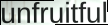
unfruitful